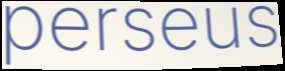
perseus